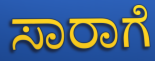
ಸಾರಾಗೆ